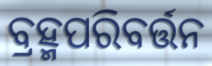
ବ୍ରହ୍ମପରିବର୍ତ୍ତନ